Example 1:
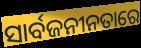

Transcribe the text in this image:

ସାର୍ବଜନୀନତାରେ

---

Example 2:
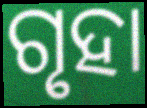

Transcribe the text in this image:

ଗୃହା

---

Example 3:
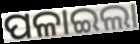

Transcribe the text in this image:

ପଳାଇଲା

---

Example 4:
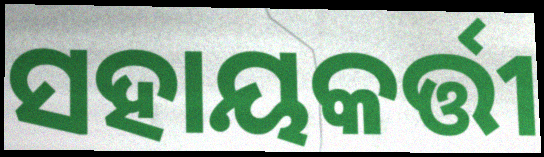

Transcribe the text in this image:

ସହାୟକର୍ତ୍ତୀ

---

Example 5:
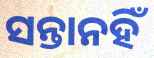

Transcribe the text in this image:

ସନ୍ତାନହିଁ